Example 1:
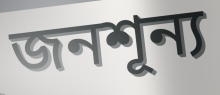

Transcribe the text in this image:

জনশূন্য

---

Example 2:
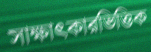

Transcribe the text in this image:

সাক্ষাৎকারভিত্তিক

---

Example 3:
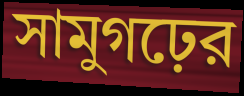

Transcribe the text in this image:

সামুগঢ়ের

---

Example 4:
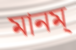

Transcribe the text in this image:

মানম্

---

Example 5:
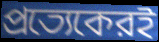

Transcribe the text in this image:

প্রত্যেকেরই